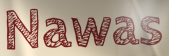
Nawas